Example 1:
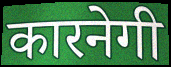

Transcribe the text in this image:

कारनेगी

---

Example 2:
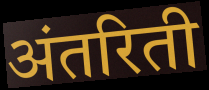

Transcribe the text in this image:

अंतरिती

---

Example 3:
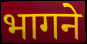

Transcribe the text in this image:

भागने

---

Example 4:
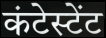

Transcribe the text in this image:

कंटेस्‍टेंट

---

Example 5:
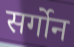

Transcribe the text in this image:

सर्गोन